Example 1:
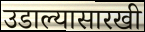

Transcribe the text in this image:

उडाल्यासारखी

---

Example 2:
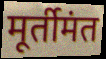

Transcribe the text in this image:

मूर्तीमंत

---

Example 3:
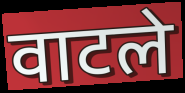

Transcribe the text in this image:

वाटले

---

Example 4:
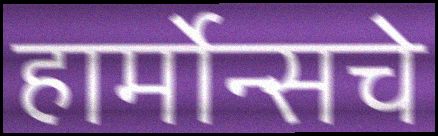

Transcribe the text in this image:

हार्मोन्सचे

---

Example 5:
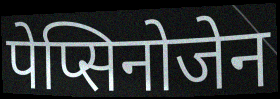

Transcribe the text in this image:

पेप्सिनोजेन